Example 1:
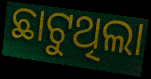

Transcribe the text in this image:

ଛାଟୁଥିଲା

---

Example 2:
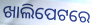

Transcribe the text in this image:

ଖାଲିପେଟରେ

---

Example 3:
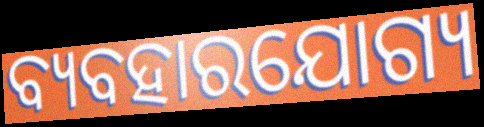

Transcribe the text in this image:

ବ୍ୟବହାରଯୋଗ୍ୟ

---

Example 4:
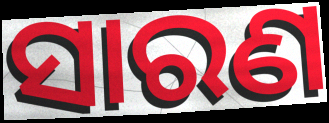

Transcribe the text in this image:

ସାରଣ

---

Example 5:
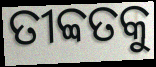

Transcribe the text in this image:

ତୀବ୍ବତକୁ